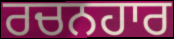
ਰਚਨਹਾਰ